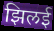
झिलई